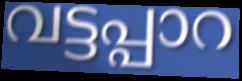
വട്ടപ്പാറ